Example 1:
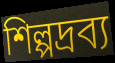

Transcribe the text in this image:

শিল্পদ্রব্য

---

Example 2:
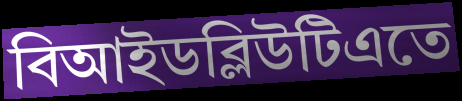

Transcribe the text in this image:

বিআইডব্লিউটিএতে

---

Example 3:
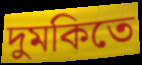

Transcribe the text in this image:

দুমকিতে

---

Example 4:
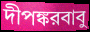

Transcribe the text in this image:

দীপঙ্করবাবু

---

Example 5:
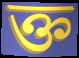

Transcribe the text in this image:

ক্ত